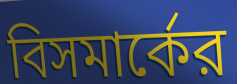
বিসমার্কের